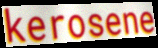
kerosene